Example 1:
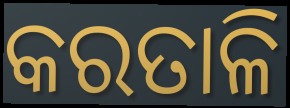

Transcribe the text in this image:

କରତାଳି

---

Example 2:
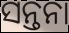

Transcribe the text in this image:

ସନ୍ତନା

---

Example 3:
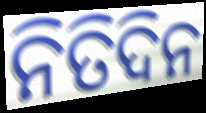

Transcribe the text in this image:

ନିତିଦିନ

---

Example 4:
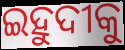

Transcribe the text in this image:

ଇହୁଦୀକୁ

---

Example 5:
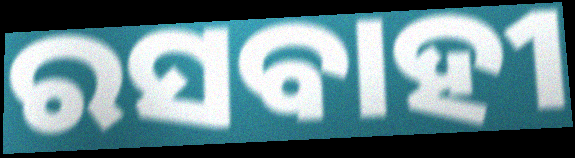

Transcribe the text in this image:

ରସବାହୀ